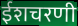
ईशचरणी